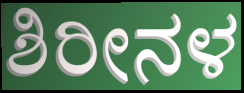
ಶಿರೀನಳ